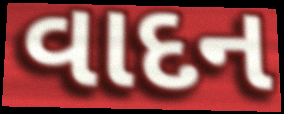
વાદન